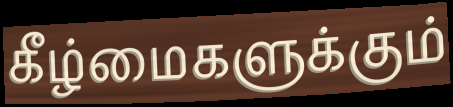
கீழ்மைகளுக்கும்